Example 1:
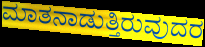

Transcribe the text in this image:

ಮಾತನಾಡುತ್ತಿರುವುದರ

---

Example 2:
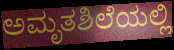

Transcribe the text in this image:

ಅಮೃತಶಿಲೆಯಲ್ಲಿ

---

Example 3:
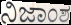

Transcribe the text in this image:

ನಿಜಾಂಶ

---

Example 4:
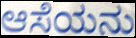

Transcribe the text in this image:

ಆಸೆಯನು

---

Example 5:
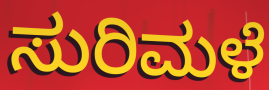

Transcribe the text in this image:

ಸುರಿಮಳೆ